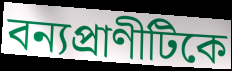
বন্যপ্রাণীটিকে